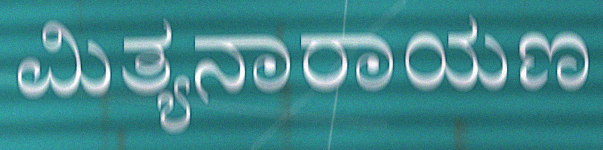
ಮಿತ್ಯನಾರಾಯಣ